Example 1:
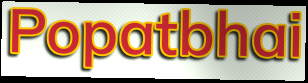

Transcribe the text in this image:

Popatbhai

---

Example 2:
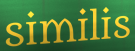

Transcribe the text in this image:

similis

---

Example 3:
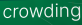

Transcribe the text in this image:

crowding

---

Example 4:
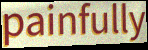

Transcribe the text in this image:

painfully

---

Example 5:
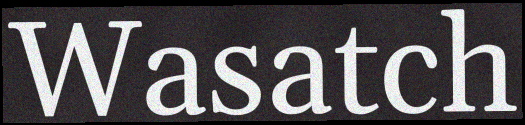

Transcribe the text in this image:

Wasatch